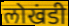
लोखंडी